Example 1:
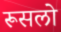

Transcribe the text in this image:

रूसलो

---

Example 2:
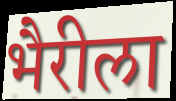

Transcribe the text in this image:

भैरीला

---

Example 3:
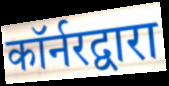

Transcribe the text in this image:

कॉर्नरद्वारा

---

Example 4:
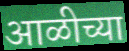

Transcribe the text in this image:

आळीच्या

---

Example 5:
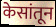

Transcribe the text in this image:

केसांतून